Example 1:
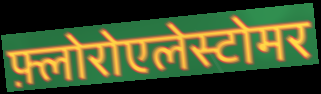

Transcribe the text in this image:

फ़्लोरोएलेस्टोमर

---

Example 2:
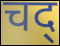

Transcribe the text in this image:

चद्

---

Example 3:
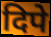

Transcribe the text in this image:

दिपे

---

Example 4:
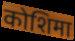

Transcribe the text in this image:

कोशिमा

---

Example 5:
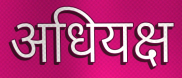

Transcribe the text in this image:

अधियक्ष